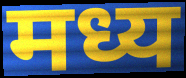
मध्य